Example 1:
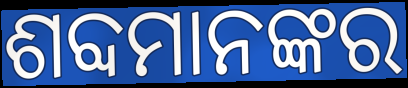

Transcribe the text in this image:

ଶବ୍ଦମାନଙ୍କର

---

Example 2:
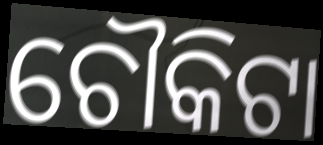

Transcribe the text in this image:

ଚୌକିଟା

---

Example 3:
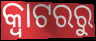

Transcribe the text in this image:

କ୍ୱାଟରରୁ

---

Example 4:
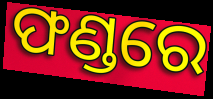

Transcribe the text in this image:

ଫଣ୍ଡରେ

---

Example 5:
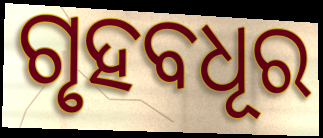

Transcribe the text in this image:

ଗୃହବଧୂର